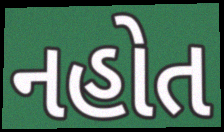
નહોત